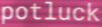
potluck